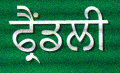
ਫ੍ਰੈਂਡਲੀ